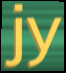
jy